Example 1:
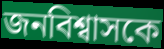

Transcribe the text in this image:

জনবিশ্বাসকে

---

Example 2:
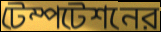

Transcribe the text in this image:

টেম্পটেশনের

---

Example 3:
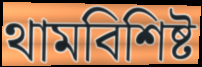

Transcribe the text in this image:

থামবিশিষ্ট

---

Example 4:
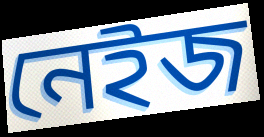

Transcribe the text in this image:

নেইজ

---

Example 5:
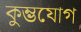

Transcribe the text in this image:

কুম্ভযোগ